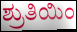
ಶ್ರುತಿಯಿಂ